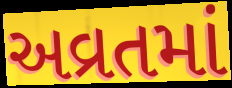
અવ્રતમાં